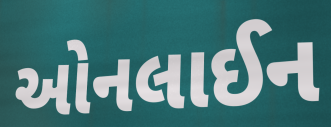
ઓનલાઈન